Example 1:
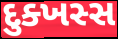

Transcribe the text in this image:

દુક્ખસ્સ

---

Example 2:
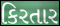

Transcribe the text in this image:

કિરતાર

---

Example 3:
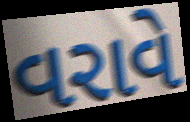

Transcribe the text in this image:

વરાવે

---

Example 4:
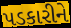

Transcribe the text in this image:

પડકારીને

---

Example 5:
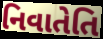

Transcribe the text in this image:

નિવાતેતિ